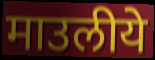
माउलीये